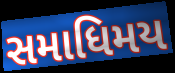
સમાધિમય